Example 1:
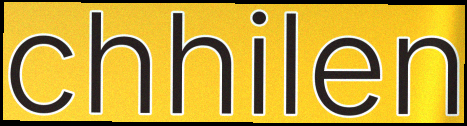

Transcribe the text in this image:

chhilen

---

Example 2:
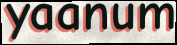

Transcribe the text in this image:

yaanum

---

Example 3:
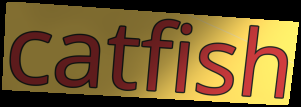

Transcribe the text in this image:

catfish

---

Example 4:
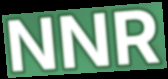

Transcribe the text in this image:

NNR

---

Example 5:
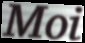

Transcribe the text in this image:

Moi